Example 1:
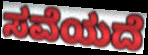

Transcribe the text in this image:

ಸವೆಯದೆ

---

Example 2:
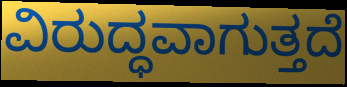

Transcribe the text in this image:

ವಿರುದ್ಧವಾಗುತ್ತದೆ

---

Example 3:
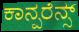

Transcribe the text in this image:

ಕಾನ್ಪರೆನ್ಸ್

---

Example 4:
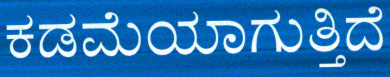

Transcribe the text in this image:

ಕಡಮೆಯಾಗುತ್ತಿದೆ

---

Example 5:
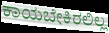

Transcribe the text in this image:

ಕಾಯಬೇಕಿರಲಿಲ್ಲ